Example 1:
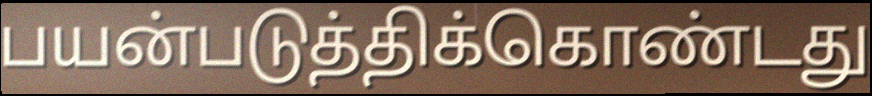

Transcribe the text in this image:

பயன்படுத்திக்கொண்டது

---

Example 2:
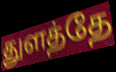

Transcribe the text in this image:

துளத்தே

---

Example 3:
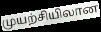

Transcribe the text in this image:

முயற்சியிலான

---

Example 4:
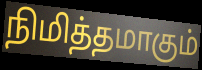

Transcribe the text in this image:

நிமித்தமாகும்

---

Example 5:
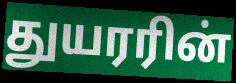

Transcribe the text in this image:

துயரரின்